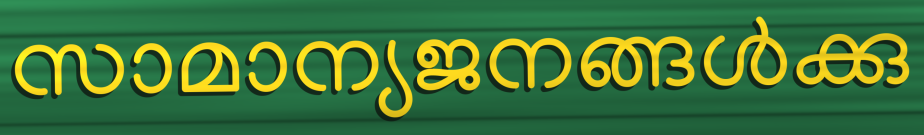
സാമാന്യജനങ്ങൾക്കു